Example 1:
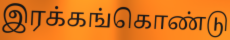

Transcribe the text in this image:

இரக்கங்கொண்டு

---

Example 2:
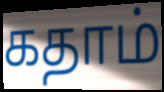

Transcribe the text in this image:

கதாம்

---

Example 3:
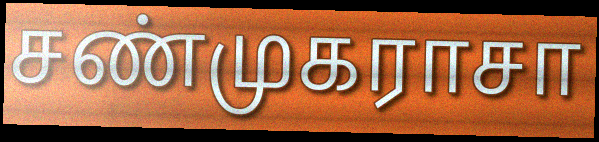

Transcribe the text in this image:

சண்முகராசா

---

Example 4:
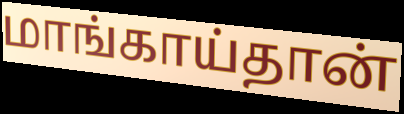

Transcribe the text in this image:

மாங்காய்தான்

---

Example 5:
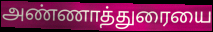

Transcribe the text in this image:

அண்ணாத்துரையை